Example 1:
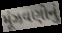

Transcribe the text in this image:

મૂંઝવણોનું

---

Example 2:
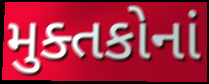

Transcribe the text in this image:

મુક્તકોનાં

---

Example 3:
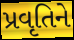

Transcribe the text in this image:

પ્રવૃતિને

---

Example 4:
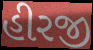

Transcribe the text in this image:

હીરજી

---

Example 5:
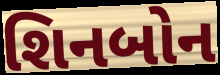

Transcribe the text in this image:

શિનબોન